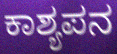
ಕಾಶ್ಯಪನ